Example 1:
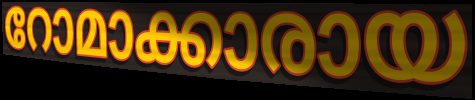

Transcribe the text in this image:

റോമാക്കാരായ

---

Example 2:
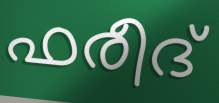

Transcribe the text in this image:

ഫരീദ്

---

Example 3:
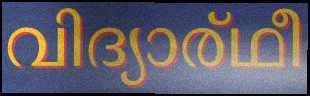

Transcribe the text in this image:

വിദ്യാര്ഥീ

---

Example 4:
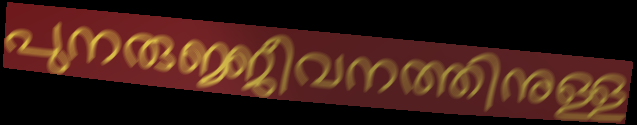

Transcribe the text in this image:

പുനരുജ്ജീവനത്തിനുള്ള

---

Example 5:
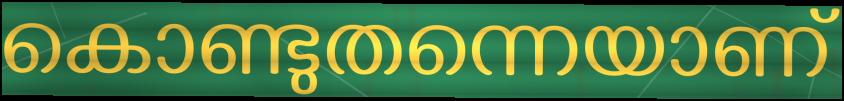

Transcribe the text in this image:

കൊണ്ടുതന്നെയാണ്